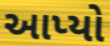
આપ્યો